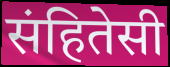
संहितेसी